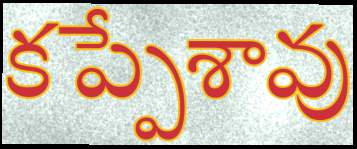
కప్పేశావు